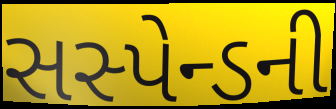
સસ્પેન્ડની